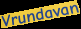
Vrundavan